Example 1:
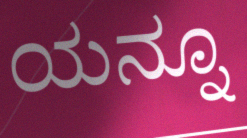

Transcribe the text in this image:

ಯನ್ನೂ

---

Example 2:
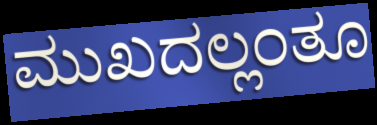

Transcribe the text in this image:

ಮುಖದಲ್ಲಂತೂ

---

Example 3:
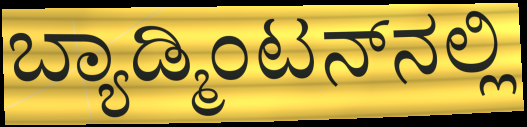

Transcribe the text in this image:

ಬ್ಯಾಡ್ಮಿಂಟನ್‌ನಲ್ಲಿ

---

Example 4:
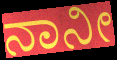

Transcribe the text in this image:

ನಾನೀ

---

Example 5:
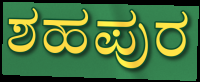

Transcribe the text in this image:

ಶಹಪುರ